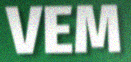
VEM